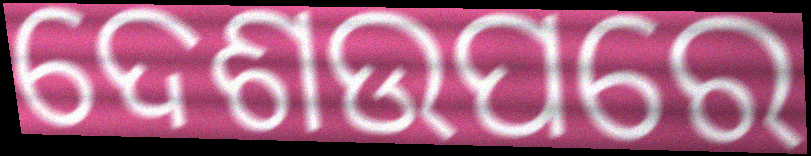
ଦେଶଉପରେ